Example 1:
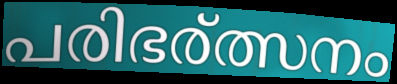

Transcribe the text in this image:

പരിഭര്ത്സനം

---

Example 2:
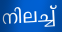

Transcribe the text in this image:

നിലച്ച്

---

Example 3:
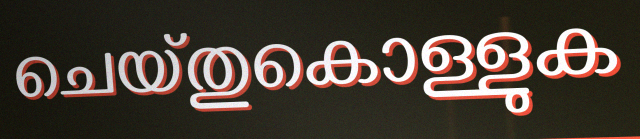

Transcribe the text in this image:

ചെയ്തുകൊള്ളുക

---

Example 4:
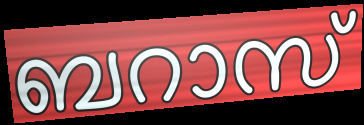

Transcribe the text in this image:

ബറാസ്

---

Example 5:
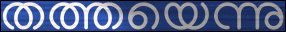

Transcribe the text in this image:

തത്തയെന്നു